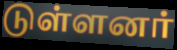
டுள்ளனர்